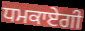
ਧਮਕਾਏਗੀ